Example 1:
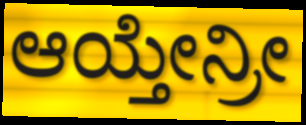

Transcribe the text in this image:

ಆಯ್ತೇನ್ರೀ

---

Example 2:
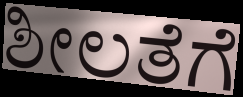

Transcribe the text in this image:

ಶೀಲತೆಗೆ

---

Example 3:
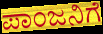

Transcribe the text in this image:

ಪಾಂಜನಿಗೆ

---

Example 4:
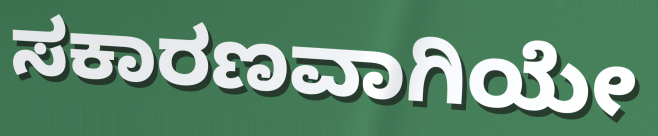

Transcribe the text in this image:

ಸಕಾರಣವಾಗಿಯೇ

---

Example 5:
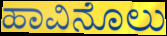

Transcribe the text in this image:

ಹಾವಿನೊಲು